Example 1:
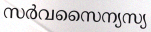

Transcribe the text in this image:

സർവസൈന്യസ്യ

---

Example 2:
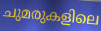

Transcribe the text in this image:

ചുമരുകളിലെ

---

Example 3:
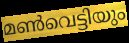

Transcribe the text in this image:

മൺവെട്ടിയും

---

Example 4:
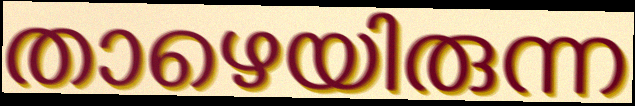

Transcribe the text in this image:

താഴെയിരുന്ന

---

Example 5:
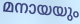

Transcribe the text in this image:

മനായയും